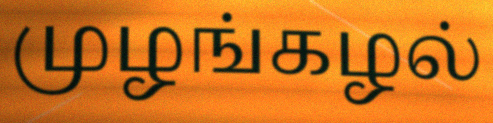
முழங்கழல்